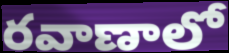
రవాణాలో